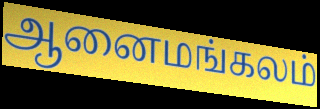
ஆனைமங்கலம்